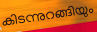
കിടന്നുറങ്ങിയും